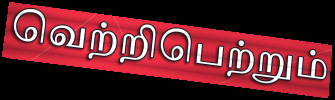
வெற்றிபெற்றும்